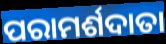
ପରାମର୍ଶଦାତା